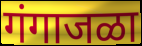
गंगाजळा